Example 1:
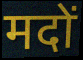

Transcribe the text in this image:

मदों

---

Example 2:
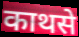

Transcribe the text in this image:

काथसे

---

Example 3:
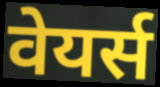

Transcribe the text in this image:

वेयर्स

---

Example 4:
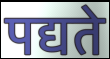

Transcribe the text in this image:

पद्यते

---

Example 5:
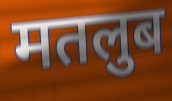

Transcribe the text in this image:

मतलुब